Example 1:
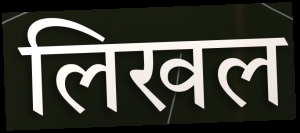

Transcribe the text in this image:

लिखल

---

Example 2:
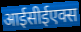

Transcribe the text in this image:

आईसीईएक्स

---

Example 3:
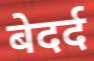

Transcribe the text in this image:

बेदर्द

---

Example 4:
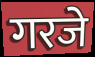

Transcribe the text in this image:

गरजे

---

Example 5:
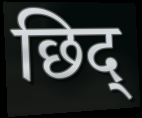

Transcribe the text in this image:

छिद्